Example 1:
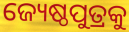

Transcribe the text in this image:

ଜ୍ୟେଷ୍ଠପୁତ୍ରକୁ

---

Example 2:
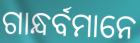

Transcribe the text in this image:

ଗାନ୍ଧର୍ବମାନେ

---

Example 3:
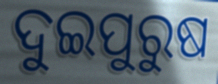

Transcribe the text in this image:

ଦୁଇପୁରୁଷ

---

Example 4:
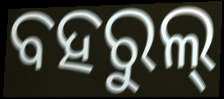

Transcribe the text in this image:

ବହରୁଲ୍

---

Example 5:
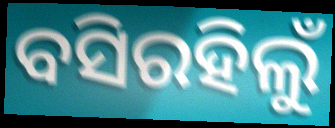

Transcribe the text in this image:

ବସିରହିଲୁଁ